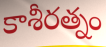
కాశీరత్నం